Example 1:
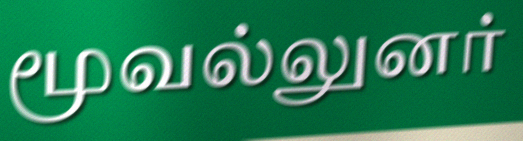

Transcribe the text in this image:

மூவல்லுனர்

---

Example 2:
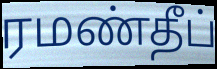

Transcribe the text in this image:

ரமண்தீப்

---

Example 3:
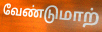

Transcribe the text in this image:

வேண்டுமாற்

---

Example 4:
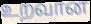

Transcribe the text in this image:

உறவான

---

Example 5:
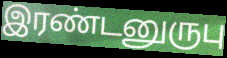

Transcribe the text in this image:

இரண்டனுருபு